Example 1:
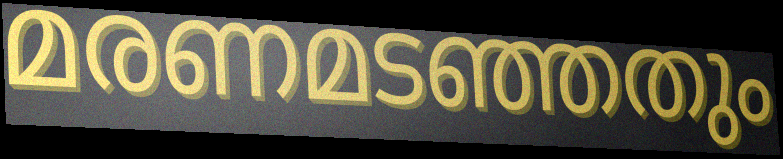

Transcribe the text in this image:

മരണമടഞ്ഞതും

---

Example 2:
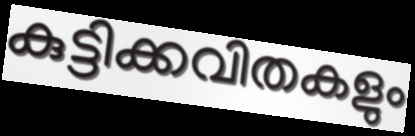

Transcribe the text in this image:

കുട്ടിക്കവിതകളും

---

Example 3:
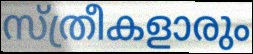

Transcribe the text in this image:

സ്ത്രീകളാരും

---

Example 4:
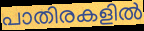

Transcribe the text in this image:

പാതിരകളിൽ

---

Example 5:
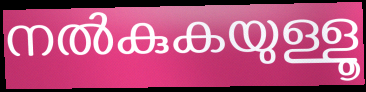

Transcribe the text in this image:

നൽകുകയുള്ളൂ